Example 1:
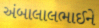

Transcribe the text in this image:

અંબાલાલભાઈને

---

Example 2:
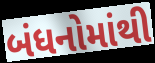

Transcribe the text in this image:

બંધનોમાંથી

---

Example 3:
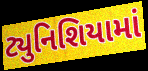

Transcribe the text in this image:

ટ્યુનિશિયામાં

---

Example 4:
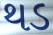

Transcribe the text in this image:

થડ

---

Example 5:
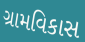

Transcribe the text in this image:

ગ્રામવિકાસ